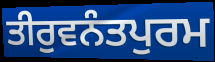
ਤੀਰੁਵਨੰਤਪੁਰਮ